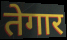
तेगार